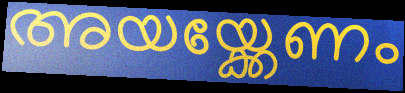
അയയ്ക്കേണം